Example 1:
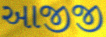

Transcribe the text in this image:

આજીજી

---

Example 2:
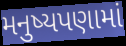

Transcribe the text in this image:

મનુષ્યપણામાં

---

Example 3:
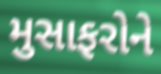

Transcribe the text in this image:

મુસાફરોને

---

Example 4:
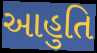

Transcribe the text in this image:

આહુતિ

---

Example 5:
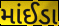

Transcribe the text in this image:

માંઈડા